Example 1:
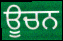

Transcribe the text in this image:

ਊਚਨ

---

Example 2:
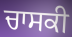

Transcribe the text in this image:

ਚਾਸਕੀ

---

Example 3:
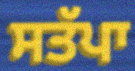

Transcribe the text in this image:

ਸਤੱਪਾ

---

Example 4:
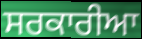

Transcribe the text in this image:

ਸਰਕਾਰੀਆ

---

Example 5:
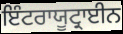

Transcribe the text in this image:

ਇੰਟਰਾਯੂਟ੍ਰਾਈਨ